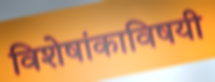
विशेषांकाविषयी